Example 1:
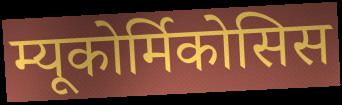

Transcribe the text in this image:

म्यूकोर्मिकोसिस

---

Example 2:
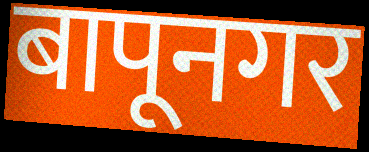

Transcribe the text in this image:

बापूनगर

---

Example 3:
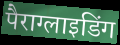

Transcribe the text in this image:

पैराग्लाइडिंग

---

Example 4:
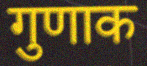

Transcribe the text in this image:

गुणाक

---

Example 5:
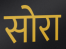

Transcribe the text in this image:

सोरा